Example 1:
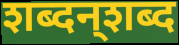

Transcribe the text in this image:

शब्दन्‌शब्द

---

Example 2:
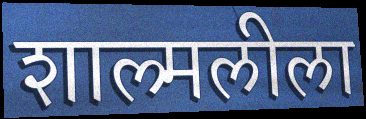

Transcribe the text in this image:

शाल्मलीला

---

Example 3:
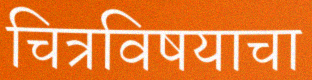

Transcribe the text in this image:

चित्रविषयाचा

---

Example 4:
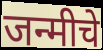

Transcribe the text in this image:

जन्मीचे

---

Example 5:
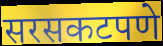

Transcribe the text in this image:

सरसकटपणे